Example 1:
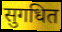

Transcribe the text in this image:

सुगधित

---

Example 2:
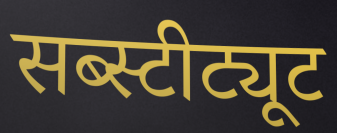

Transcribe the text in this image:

सब्स्टीट्यूट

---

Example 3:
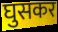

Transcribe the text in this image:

घुसकर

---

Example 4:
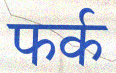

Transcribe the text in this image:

फर्क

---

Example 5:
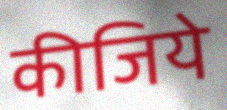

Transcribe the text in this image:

कीजिये